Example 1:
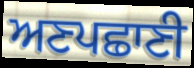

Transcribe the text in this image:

ਅਣਪਛਾਣੀ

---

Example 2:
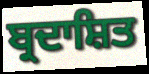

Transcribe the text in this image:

ਬ੍ਰਦਾਸ਼ਿਤ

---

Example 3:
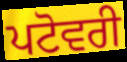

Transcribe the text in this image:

ਪਟੋਵਰੀ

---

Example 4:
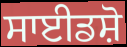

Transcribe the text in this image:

ਸਾਈਡਸ਼ੋ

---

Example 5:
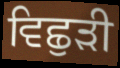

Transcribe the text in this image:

ਵਿਛੁੜੀ